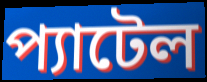
প্যাটেল